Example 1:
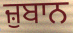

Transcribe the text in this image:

ਜ਼ੁਬਾਨ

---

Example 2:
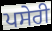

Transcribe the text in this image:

ਪਸੇਰੀ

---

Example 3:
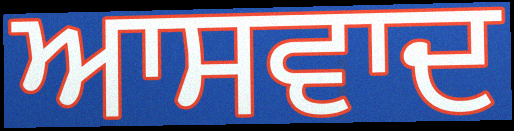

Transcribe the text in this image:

ਆਸਵਾਦ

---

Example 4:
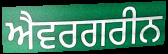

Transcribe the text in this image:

ਐਵਰਗਰੀਨ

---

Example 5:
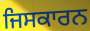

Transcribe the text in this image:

ਜਿਸਕਾਰਨ